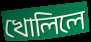
খোলিলে